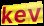
kev